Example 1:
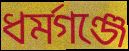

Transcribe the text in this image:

ধর্মগঞ্জে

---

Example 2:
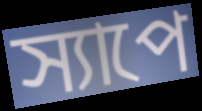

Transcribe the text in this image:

স্যাপে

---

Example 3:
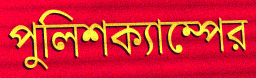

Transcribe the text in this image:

পুলিশক্যাম্পের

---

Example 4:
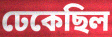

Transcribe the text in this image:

ঢেকেছিল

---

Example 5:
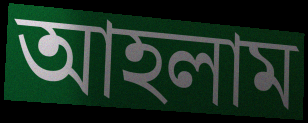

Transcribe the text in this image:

আহলাম